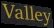
Valley